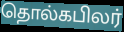
தொல்கபிலர்